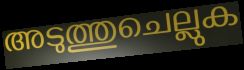
അടുത്തുചെല്ലുക